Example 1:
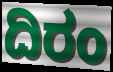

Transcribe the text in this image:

ದಿರಂ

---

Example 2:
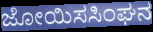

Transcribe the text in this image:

ಜೋಯಿಸಸಿಂಘನ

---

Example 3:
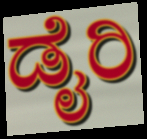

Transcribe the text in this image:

ಡೈರಿ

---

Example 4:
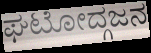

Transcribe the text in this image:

ಘಟೋದ್ಗಜನ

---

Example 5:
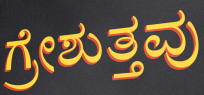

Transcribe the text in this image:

ಗ್ರೇಶುತ್ತವು